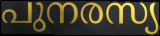
പുനരസ്യ